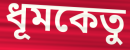
ধূমকেতু